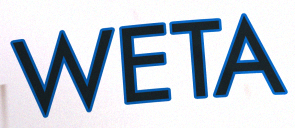
WETA